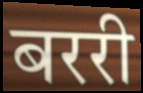
बररी